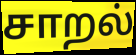
சாறல்